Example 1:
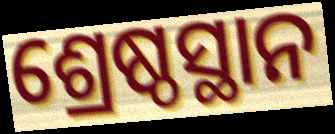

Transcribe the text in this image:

ଶ୍ରେଷ୍ଠସ୍ଥାନ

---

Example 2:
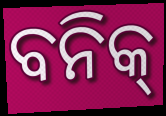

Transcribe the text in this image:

ବନିକ୍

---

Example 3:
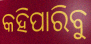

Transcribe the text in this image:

କହିପାରିବୁ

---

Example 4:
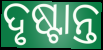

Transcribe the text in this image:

ଦୃଷ୍ଟାନ୍ତ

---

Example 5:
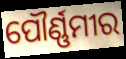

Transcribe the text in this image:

ପୌର୍ଣ୍ଣମୀର